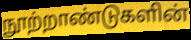
நூற்றாண்டுகளின்